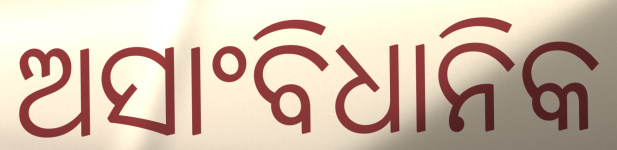
ଅସାଂବିଧାନିକ